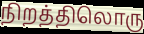
நிறத்திலொரு